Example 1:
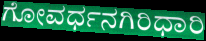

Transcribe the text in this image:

ಗೋವರ್ಧನಗಿರಿಧಾರಿ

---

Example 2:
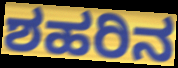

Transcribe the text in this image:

ಶಹರಿನ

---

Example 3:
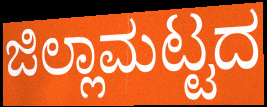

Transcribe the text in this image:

ಜಿಲ್ಲಾಮಟ್ಟದ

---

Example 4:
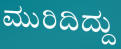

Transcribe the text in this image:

ಮುರಿದಿದ್ದು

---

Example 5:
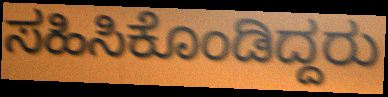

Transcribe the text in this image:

ಸಹಿಸಿಕೊಂಡಿದ್ದರು